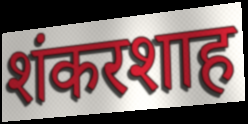
शंकरशाह